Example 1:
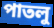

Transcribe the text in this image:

পাতলু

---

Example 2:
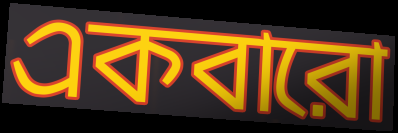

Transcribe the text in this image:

একবারো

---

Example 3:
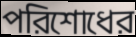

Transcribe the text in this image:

পরিশোধের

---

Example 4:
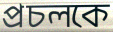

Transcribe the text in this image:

প্রচলকে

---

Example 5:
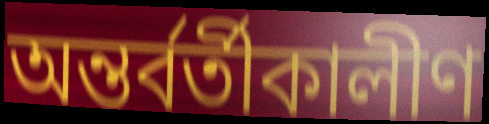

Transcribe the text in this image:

অন্তর্বর্তীকালীণ